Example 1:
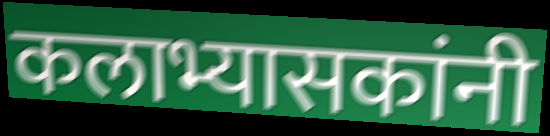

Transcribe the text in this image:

कलाभ्यासकांनी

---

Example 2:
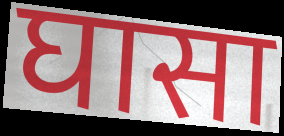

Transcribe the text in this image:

घासा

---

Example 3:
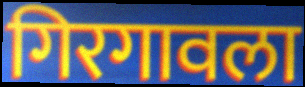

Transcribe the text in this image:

गिरगावला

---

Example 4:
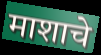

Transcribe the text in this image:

माशाचे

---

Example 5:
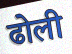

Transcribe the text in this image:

ढोली